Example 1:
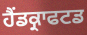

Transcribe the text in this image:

ਹੈਂਡਕ੍ਰਾਫਟਡ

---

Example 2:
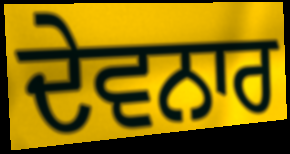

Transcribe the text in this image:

ਦੇਵਨਾਰ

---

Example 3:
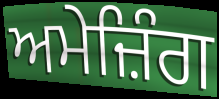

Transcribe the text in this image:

ਅਮੇਜ਼ਿੰਗ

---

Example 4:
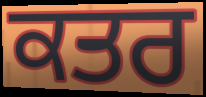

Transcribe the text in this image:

ਕਤਰ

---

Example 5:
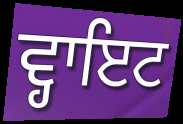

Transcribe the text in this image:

ਵ੍ਹਾਇਟ